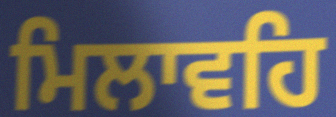
ਮਿਲਾਵਹਿ